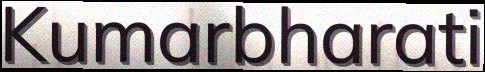
Kumarbharati